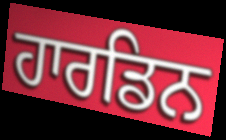
ਹਾਰਡਿਨ